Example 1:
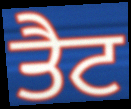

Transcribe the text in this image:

ਤੈਟ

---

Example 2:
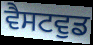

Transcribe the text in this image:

ਵੈਸਟਵੁਡ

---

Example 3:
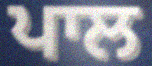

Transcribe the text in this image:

ਪਾਲ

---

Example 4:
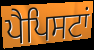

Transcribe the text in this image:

ਪੈਪਿਸਟਾਂ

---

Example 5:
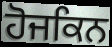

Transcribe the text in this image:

ਹੋਜਕਿਨ